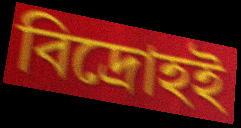
বিদ্রোহই